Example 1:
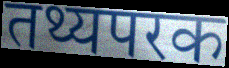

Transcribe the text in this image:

तथ्यपरक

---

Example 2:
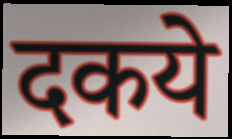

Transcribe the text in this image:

दकये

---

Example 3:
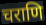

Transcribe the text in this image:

चराणि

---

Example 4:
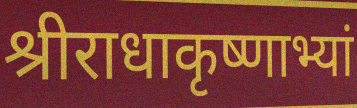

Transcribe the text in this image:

श्रीराधाकृष्णाभ्यां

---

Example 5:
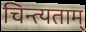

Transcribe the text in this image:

चिन्त्यताम्